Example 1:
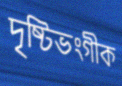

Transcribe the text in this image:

দৃষ্টিভংগীক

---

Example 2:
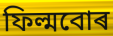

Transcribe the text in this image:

ফিল্মবোৰ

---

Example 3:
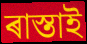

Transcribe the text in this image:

ৰাস্তাই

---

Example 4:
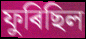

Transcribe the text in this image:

ফুৰিছিল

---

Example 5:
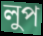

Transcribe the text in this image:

লুপ